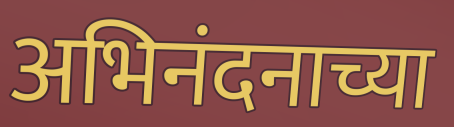
अभिनंदनाच्या